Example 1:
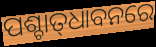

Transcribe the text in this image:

ପଶ୍ଚାତ୍‍ଧାବନରେ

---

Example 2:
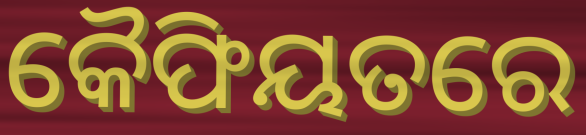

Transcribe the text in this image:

କୈଫିୟତରେ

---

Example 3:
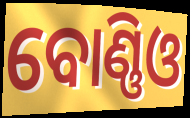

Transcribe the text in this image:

ବୋଣ୍ଣିଓ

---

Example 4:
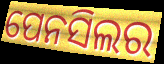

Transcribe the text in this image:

ପେନସିଲର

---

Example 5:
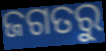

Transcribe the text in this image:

ଜଗତରୁ